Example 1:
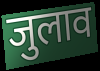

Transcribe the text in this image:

जुलाव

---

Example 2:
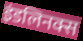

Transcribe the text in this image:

इंडलिनक्स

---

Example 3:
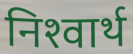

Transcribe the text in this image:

निश्वार्थ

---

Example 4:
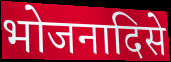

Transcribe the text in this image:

भोजनादिसे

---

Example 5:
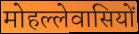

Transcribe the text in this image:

मोहल्लेवासियों